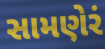
સામણેરં